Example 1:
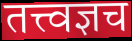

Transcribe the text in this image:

तत्त्वज्ञच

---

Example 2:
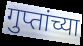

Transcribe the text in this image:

गुप्तांच्या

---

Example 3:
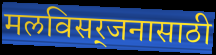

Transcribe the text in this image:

मलविसर्जनासाठी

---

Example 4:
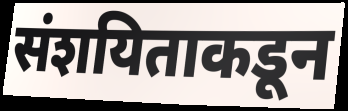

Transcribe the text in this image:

संशयिताकडून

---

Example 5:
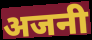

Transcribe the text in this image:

अजनी